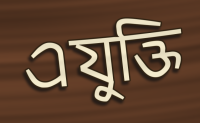
এযুক্তি